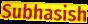
Subhasish